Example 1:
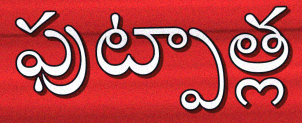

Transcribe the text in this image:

ఫుట్పాత్ల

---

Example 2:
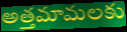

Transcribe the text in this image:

అత్తమామలకు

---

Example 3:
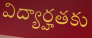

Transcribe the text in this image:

విద్యార్హతకు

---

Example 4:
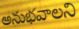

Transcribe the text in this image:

అనుభవాలని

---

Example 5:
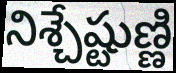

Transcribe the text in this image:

నిశ్చేష్టుణ్ణి